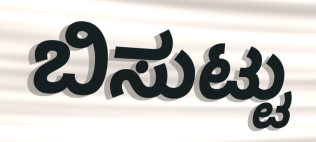
ಬಿಸುಟ್ಟು